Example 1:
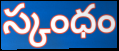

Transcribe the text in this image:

స్కంధం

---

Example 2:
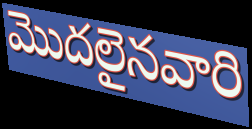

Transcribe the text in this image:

మొదలైనవారి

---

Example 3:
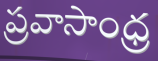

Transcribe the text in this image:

ప్రవాసాంధ్ర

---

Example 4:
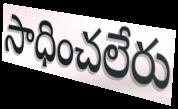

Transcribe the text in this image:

సాధించలేరు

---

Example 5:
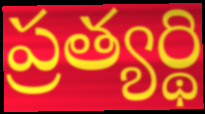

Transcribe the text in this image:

ప్రత్యర్థి